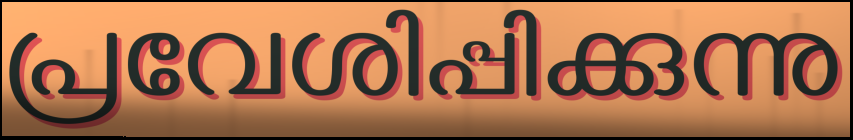
പ്രവേശിപ്പിക്കുന്നു